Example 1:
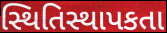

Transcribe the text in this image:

સ્થિતિસ્થાપકતા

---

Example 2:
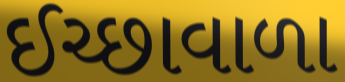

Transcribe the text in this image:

ઈચ્છાવાળા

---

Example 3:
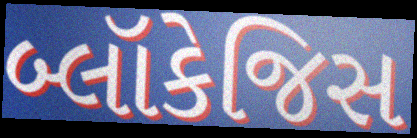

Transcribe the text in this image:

બ્લૉકેજિસ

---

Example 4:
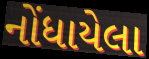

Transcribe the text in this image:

નોંધાયેલા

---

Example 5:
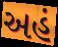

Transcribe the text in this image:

અહં